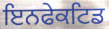
ਇਨਫੇਕਟਿਡ